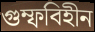
গুম্ফবিহীন